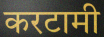
करटामी